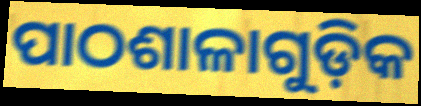
ପାଠଶାଳାଗୁଡ଼ିକ